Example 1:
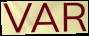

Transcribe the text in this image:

VAR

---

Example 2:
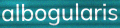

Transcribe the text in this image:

albogularis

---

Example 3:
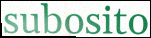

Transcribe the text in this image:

subosito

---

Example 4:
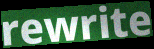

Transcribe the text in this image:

rewrite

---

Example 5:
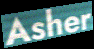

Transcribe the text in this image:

Asher